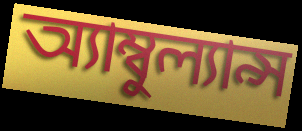
অ্যাম্বুল্যান্স